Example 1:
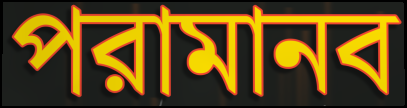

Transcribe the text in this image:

পরামানব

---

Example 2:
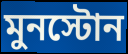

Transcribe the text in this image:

মুনস্টোন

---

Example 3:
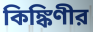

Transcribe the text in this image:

কিঙ্কিণীর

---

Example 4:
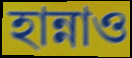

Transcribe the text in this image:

হান্নাও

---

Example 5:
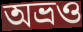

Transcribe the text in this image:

অভ্রও